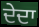
ਦੇਦਾ